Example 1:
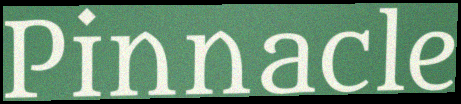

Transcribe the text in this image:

Pinnacle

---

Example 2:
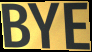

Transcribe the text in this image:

BYE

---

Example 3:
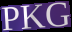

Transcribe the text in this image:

PKG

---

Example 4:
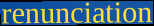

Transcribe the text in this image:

renunciation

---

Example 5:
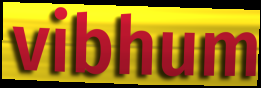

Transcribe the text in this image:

vibhum